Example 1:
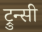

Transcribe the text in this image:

ट्रुन्सी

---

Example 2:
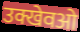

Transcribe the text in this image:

उक्खेवओ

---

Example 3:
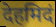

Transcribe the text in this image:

देहमिदं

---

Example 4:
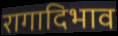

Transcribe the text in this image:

रागादिभाव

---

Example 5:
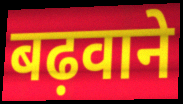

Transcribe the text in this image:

बढ़वाने